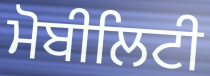
ਮੋਬੀਲਿਟੀ